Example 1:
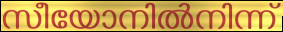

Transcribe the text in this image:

സീയോനിൽനിന്ന്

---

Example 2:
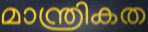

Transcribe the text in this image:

മാന്ത്രികത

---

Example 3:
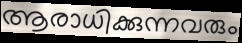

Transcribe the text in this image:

ആരാധിക്കുന്നവരും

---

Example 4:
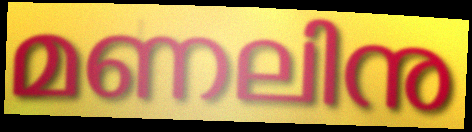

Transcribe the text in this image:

മണലിനു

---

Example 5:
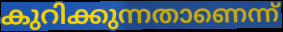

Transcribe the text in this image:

കുറിക്കുന്നതാണെന്ന്